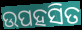
ଉପହସିତ